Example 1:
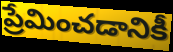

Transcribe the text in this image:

ప్రేమించడానికీ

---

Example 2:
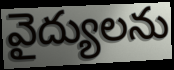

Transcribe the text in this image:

వైద్యులను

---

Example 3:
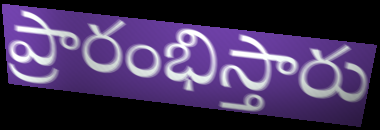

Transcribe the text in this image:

ప్రారంభిస్తారు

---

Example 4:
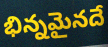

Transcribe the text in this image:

భిన్నమైనదే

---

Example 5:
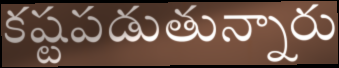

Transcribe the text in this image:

కష్టపడుతున్నారు